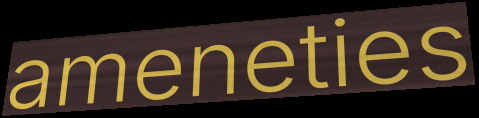
ameneties